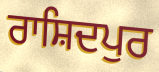
ਰਾਸ਼ਿਦਪੁਰ